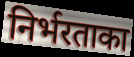
निर्भरताका